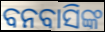
ବନବାସିଙ୍କ